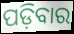
ପଡ଼ିବାର